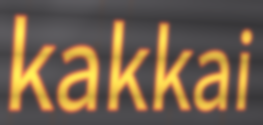
kakkai